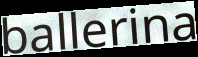
ballerina